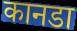
कानडा